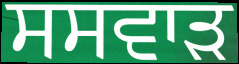
ਸਸਵਾੜ